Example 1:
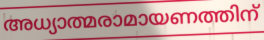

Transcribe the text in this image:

അധ്യാത്മരാമായണത്തിന്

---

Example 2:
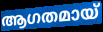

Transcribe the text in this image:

ആഗതമായ്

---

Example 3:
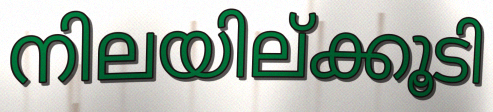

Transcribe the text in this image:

നിലയില്ക്കൂടി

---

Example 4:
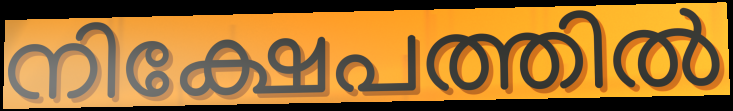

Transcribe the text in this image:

നിക്ഷേപത്തിൽ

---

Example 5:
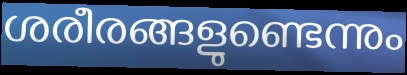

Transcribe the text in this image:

ശരീരങ്ങളുണ്ടെന്നും